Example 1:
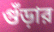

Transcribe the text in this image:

গুঁড়ার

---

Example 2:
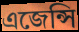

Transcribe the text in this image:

এজেন্সি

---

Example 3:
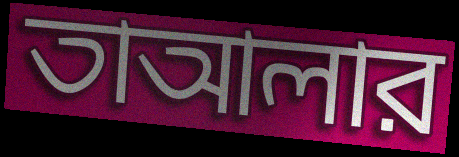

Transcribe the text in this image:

তাআলার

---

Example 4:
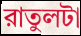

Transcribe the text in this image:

রাতুলটা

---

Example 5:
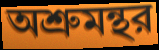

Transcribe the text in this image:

অশ্রুমন্থর